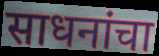
साधनांचा